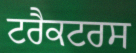
ਟਰੈਕਟਰਸ